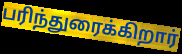
பரிந்துரைக்கிறார்